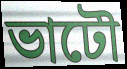
ভাটৌ